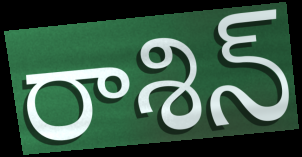
రాశిన్